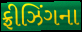
ફ્રીઝિંગના